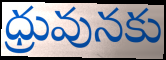
ధ్రువునకు